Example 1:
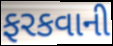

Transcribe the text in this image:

ફરકવાની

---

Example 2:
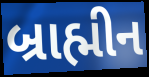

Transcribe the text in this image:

બ્રાહ્મીન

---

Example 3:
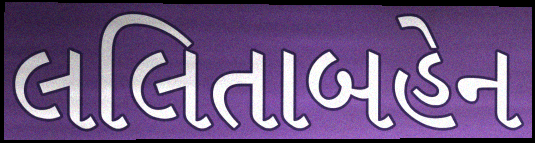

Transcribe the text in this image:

લલિતાબહેન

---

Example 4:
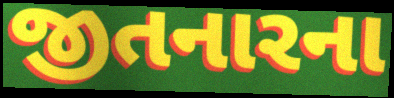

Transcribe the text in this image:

જીતનારના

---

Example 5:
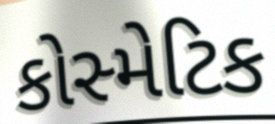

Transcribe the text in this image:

કોસ્મેટિક